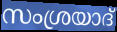
സംശ്രയാദ്